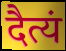
दैत्यं